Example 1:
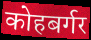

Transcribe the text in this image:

कोहबर्गर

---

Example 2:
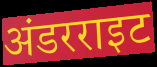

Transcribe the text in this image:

अंडरराइट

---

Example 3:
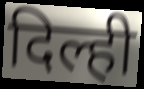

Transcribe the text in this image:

दिल्ही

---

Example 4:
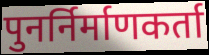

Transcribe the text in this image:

पुनर्निर्माणकर्ता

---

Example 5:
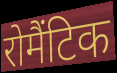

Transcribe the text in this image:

रोमैंटिक